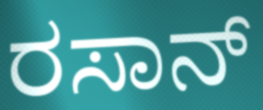
ರಸಾನ್